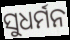
ସୁଧର୍ମନ